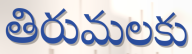
తిరుమలకు